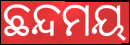
ଛନ୍ଦମୟ